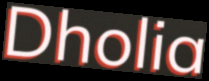
Dholia